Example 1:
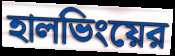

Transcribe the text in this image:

হালভিংয়ের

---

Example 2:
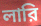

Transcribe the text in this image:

লারি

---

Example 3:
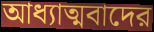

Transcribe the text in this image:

আধ্যাত্মবাদের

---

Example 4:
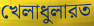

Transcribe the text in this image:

খেলাধুলারত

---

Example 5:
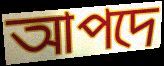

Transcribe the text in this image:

আপদে